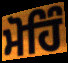
ਮੋਹਿੰ